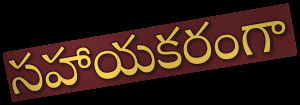
సహాయకరంగా